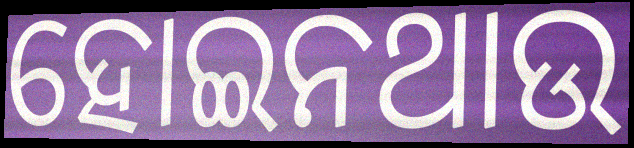
ହୋଇନଥାଉ